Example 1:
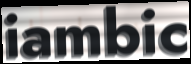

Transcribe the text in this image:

iambic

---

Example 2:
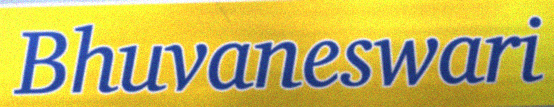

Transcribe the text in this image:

Bhuvaneswari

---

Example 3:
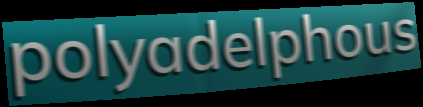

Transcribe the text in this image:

polyadelphous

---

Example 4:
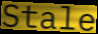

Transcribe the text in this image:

Stale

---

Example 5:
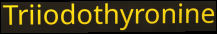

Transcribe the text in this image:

Triiodothyronine